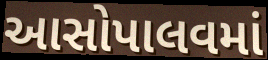
આસોપાલવમાં